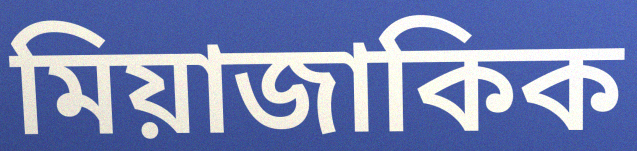
মিয়াজাকিক